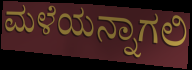
ಮಳೆಯನ್ನಾಗಲಿ